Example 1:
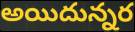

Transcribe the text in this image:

అయిదున్నర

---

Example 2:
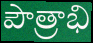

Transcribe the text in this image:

పౌత్రాభి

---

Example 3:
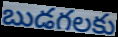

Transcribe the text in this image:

బుడగలకు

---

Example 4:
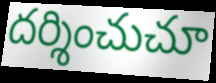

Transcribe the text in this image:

దర్శించుచూ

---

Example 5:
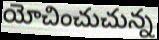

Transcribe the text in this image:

యోచించుచున్న